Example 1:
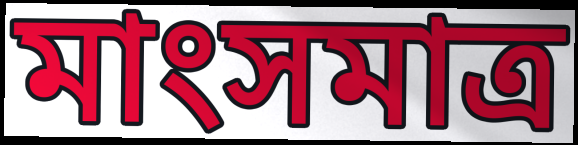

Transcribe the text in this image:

মাংসমাত্র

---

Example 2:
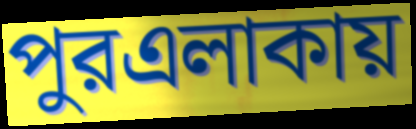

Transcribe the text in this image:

পুরএলাকায়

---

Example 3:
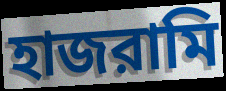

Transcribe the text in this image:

হাজরামি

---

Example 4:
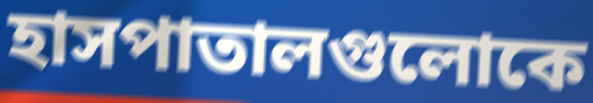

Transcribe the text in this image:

হাসপাতালগুলোকে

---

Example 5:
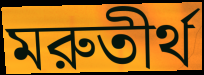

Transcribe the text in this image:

মরুতীর্থ